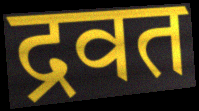
द्रवत